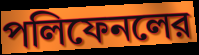
পলিফেনলের